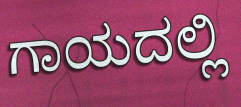
ಗಾಯದಲ್ಲಿ